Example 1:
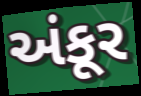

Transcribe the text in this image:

અંકૂર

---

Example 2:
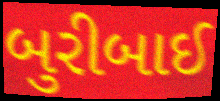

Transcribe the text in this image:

બુરીબાઈ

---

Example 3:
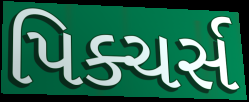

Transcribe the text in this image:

પિક્ચર્સ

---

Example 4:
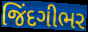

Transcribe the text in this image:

જિંદગીભર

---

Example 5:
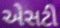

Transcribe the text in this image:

એસટી